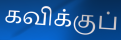
கவிக்குப்